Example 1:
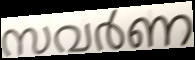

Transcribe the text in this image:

സവർണ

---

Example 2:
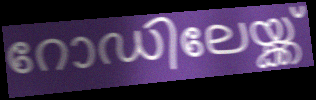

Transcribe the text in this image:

റോഡിലേയ്ക്ക്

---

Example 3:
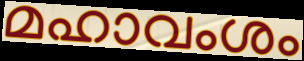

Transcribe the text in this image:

മഹാവംശം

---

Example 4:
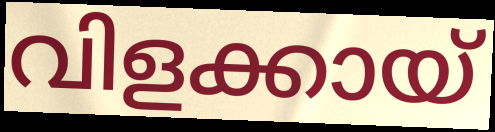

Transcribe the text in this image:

വിളക്കായ്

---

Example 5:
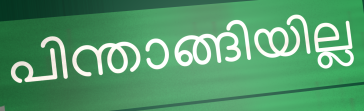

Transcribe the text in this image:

പിന്താങ്ങിയില്ല